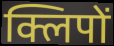
क्लिपों